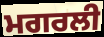
ਮਗਰਲੀ